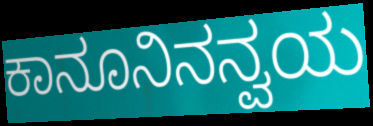
ಕಾನೂನಿನನ್ವಯ